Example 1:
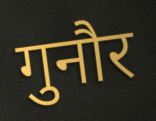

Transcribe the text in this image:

गुनौर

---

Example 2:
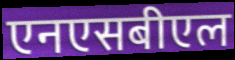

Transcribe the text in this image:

एनएसबीएल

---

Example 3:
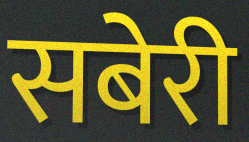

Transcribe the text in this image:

सबेरी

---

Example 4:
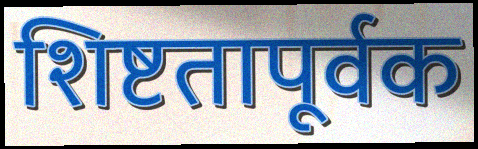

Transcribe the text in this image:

शिष्टतापूर्वक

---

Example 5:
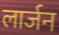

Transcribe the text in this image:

लार्जन